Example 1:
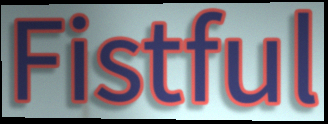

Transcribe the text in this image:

Fistful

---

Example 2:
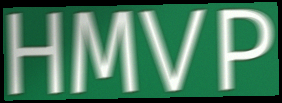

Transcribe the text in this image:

HMVP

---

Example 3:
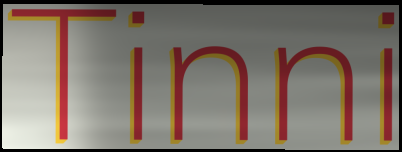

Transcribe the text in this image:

Tinni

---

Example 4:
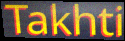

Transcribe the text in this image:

Takhti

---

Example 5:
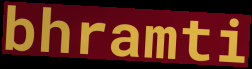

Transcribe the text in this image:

bhramti